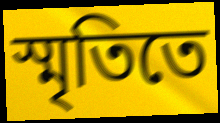
স্মৃতিতে